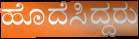
ಹೊದೆಸಿದ್ದರು